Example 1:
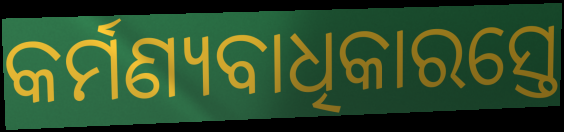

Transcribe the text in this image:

କର୍ମଣ୍ୟବାଧିକାରସ୍ତେ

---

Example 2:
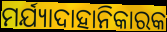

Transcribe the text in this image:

ମର୍ଯ୍ୟାଦାହାନିକାରକ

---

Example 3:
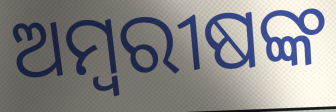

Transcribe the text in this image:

ଅମ୍ବରୀଷଙ୍କ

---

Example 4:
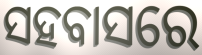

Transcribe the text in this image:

ସହବାସରେ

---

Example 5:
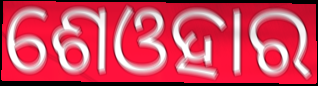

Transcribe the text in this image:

ଶେଓହାର